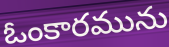
ఓంకారమును